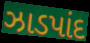
ઝાડપાંદ